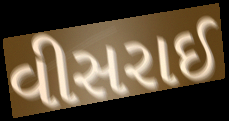
વીસરાઈ